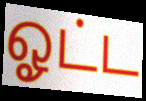
ஓட்ட